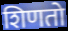
शिणतो